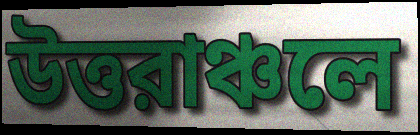
উত্তরাঞ্চলে